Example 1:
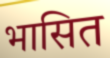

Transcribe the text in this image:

भासित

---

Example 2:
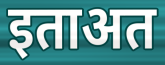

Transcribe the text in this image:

इताअत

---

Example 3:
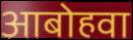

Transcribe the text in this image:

आबोहवा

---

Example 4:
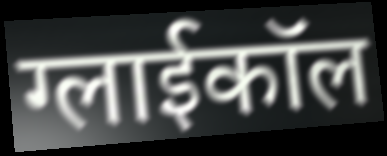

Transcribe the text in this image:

ग्लाईकॉल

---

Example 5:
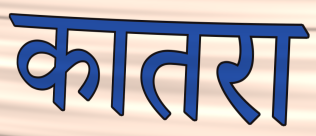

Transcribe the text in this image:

कातरा